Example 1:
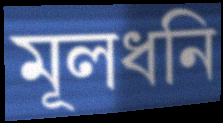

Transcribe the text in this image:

মূলধনি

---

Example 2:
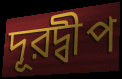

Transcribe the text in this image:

দূরদ্বীপ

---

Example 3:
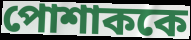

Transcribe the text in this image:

পোশাককে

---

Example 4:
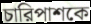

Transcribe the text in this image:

চারিপাশকে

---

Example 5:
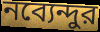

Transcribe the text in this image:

নব্যেন্দুর